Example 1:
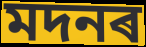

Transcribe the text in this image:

মদনৰ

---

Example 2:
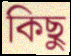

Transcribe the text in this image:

কিছু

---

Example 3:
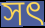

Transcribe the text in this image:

সৎ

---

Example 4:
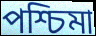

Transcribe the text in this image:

পশ্চিমা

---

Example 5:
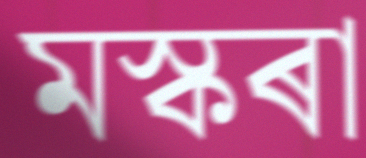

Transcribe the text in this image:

মস্কৰা